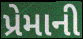
પ્રેમાની